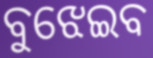
ବୁଝେଇବ